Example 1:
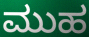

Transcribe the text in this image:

ಮುಹ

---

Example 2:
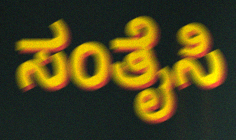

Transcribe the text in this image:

ಸಂತೈಸಿ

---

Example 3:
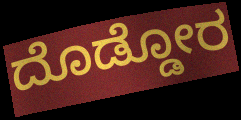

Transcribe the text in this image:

ದೊಡ್ಡೋರ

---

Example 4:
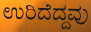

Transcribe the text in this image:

ಉರಿದೆದ್ದವು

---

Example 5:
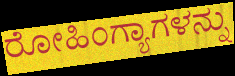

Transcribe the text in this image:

ರೋಹಿಂಗ್ಯಾಗಳನ್ನು